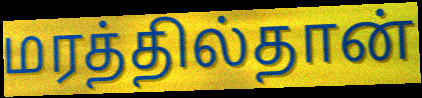
மரத்தில்தான்